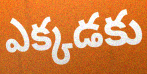
ఎక్కడకు